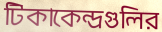
টিকাকেন্দ্রগুলির